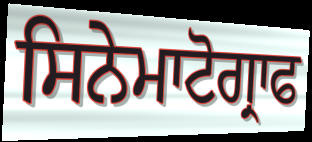
ਸਿਨੇਮਾਟੋਗ੍ਰਾਫ